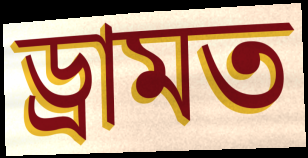
ড্ৰামত